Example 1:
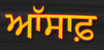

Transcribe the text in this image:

ਆੱਸਾਫ਼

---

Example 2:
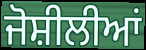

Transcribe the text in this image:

ਜੋਸ਼ੀਲੀਆਂ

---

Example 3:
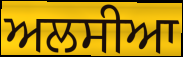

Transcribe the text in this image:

ਅਲਸੀਆ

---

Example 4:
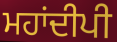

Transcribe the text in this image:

ਮਹਾਂਦੀਪੀ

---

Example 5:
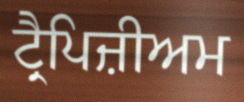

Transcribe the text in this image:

ਟ੍ਰੈਪਿਜ਼ੀਅਮ